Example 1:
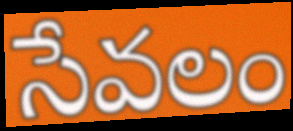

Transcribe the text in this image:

సేవలం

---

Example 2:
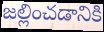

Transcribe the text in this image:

జల్లించడానికి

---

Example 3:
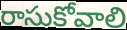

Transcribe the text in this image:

రాసుకోవాలి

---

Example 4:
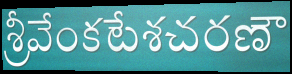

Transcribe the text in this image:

శ్రీవేంకటేశచరణౌ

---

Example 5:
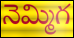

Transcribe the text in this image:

నెమ్మిగ